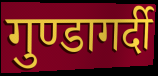
गुण्डागर्दी